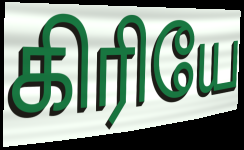
கிரியே